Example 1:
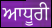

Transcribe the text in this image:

ਆਧੂਰੀ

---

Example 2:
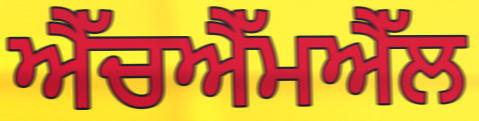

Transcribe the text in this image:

ਐੱਚਐੱਮਐੱਲ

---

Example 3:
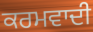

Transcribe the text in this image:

ਕਰਮਵਾਦੀ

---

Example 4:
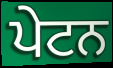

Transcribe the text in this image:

ਪੇਟਨ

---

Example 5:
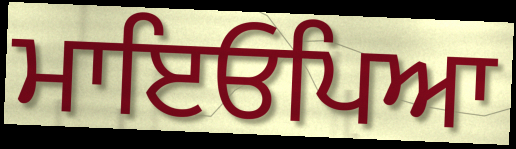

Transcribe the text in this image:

ਮਾਇਓਪਿਆ